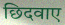
छिदवाए